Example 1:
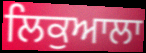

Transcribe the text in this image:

ਲਿਕੁਆਲਾ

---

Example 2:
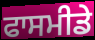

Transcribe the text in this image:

ਫਾਸਮੀਡੇ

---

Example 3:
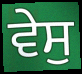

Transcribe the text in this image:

ਵੇਸੁ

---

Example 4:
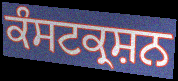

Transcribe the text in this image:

ਕੰਸਟਕ੍ਰਸ਼ਨ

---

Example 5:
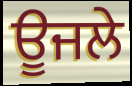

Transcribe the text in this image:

ਊਜਲੇ